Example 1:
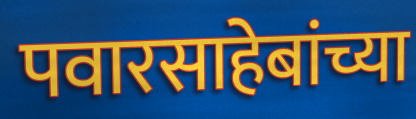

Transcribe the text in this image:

पवारसाहेबांच्या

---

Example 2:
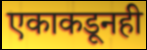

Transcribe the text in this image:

एकाकडूनही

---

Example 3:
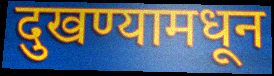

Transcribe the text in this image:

दुखण्यामधून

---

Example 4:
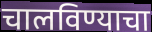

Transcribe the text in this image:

चालविण्याचा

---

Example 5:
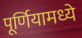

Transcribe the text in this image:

पूर्णियामध्ये